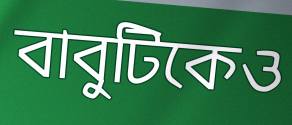
বাবুটিকেও